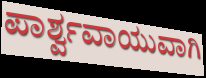
ಪಾರ್ಶ್ವವಾಯುವಾಗಿ